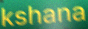
kshana